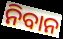
ନିବାନ